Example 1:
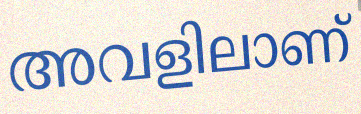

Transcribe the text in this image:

അവളിലാണ്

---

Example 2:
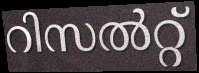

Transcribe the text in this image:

റിസൽറ്റ്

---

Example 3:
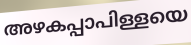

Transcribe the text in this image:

അഴകപ്പാപിള്ളയെ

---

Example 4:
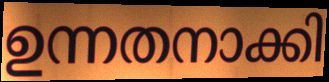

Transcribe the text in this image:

ഉന്നതനാക്കി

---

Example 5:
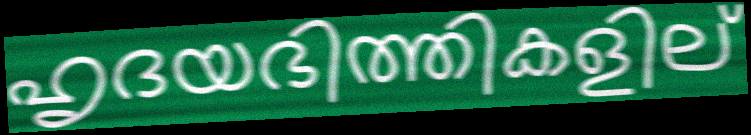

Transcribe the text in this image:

ഹൃദയഭിത്തികളില്